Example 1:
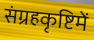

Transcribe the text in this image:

संग्रहकृष्टिमें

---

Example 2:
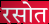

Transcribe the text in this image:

रसोत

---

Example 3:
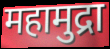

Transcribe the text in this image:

महामुद्रा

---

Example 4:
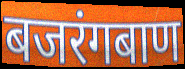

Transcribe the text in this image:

बजरंगबाण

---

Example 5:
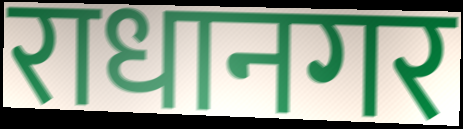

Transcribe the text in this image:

राधानगर